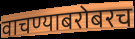
वाचण्याबरोबरच